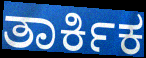
ತಾರ್ಕಿಕ